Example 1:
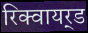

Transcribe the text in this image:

रिक्वायर्ड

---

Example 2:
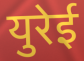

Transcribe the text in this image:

युरेई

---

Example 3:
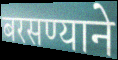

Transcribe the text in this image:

बरसण्याने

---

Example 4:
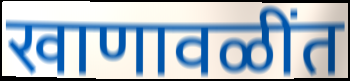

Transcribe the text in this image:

खाणावळींत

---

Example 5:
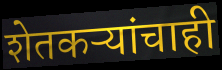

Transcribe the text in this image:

शेतकऱ्यांचाही